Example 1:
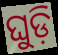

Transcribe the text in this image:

ଘୁଡ଼ି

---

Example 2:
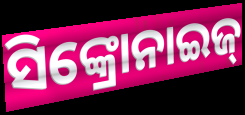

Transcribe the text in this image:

ସିଙ୍କ୍ରୋନାଇଜ୍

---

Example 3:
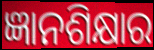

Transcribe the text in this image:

ଜ୍ଞାନଶିକ୍ଷାର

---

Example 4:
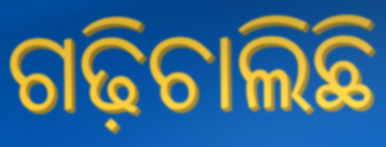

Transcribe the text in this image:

ଗଢ଼ିଚାଲିଛି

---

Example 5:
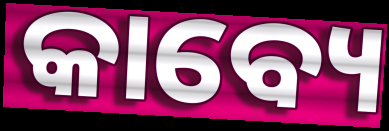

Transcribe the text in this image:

କାବ୍ୟେ